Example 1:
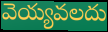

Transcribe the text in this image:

వెయ్యవలదు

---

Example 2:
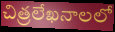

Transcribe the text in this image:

చిత్రలేఖనాలలో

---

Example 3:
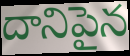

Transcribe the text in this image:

దానిపైన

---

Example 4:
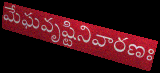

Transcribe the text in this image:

మేఘవృష్టినివారణః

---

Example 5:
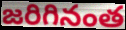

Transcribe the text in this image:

జరిగినంత